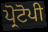
ਪ੍ਰੋਟੋਪੀ